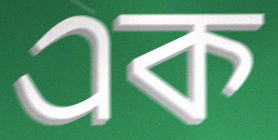
এক